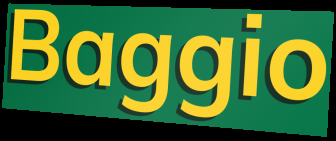
Baggio